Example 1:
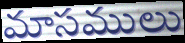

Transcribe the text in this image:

మాసములు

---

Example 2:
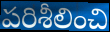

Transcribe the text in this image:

పరిశీలించి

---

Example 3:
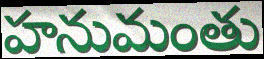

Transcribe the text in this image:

హనుమంతు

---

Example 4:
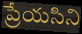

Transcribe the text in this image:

ప్రేయసిని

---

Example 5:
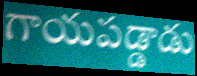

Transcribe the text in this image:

గాయపడ్డాడు